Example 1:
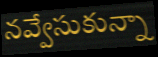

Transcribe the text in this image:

నవ్వేసుకున్నా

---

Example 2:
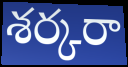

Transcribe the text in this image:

శర్కరా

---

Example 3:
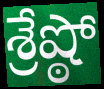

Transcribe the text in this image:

శ్రేష్ఠో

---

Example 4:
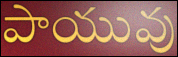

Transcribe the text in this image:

పాయువు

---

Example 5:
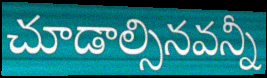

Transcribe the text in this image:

చూడాల్సినవన్నీ